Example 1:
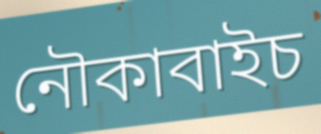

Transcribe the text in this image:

নৌকাবাইচ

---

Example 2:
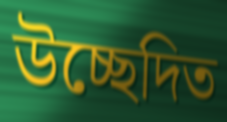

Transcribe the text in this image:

উচ্ছেদিত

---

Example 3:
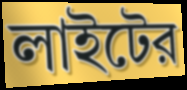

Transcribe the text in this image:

লাইটের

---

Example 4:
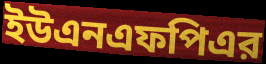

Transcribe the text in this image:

ইউএনএফপিএর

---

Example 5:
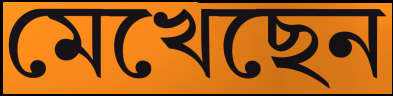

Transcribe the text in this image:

মেখেছেন